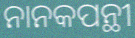
ନାନକପନ୍ଥୀ